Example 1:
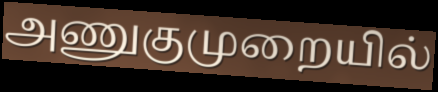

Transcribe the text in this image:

அணுகுமுறையில்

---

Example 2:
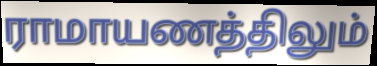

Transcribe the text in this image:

ராமாயணத்திலும்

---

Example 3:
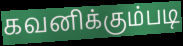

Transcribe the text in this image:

கவனிக்கும்படி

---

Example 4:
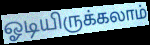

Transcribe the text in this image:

ஓடியிருக்கலாம்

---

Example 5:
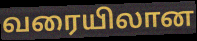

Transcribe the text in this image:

வரையிலான